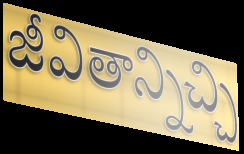
జీవితాన్నిచ్చి